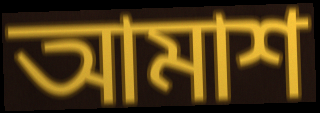
আমাশ